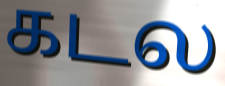
கடல